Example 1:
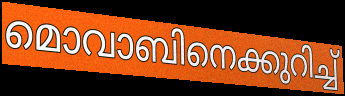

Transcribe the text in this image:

മൊവാബിനെക്കുറിച്ച്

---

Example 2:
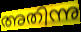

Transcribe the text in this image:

അതിന്നു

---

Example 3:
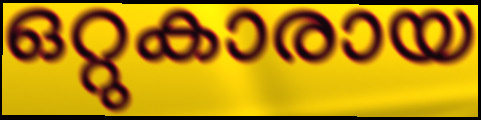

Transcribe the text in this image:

ഒറ്റുകാരായ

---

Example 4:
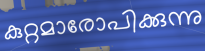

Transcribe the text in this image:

കുറ്റമാരോപിക്കുന്നു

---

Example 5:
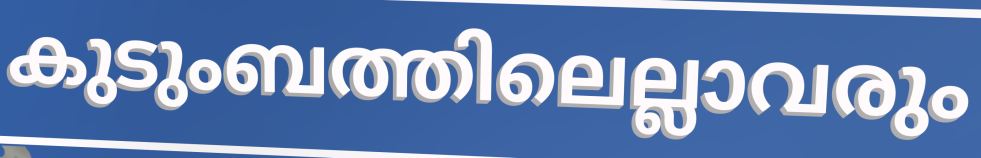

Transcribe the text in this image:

കുടുംബത്തിലെല്ലാവരും